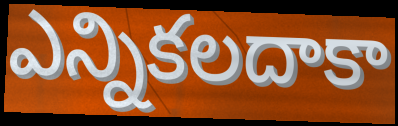
ఎన్నికలదాకా